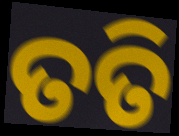
ତତି